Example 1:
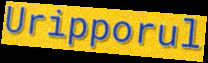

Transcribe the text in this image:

Uripporul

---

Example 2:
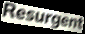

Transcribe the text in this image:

Resurgent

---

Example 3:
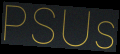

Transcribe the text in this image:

PSUs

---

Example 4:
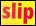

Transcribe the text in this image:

slip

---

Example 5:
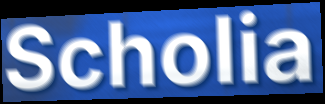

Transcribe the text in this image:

Scholia